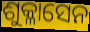
ଶୁକ୍ଳାସେନ